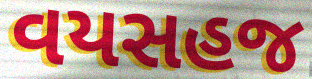
વયસહજ